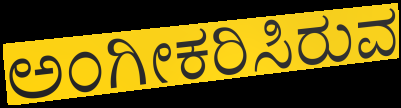
ಅಂಗೀಕರಿಸಿರುವ